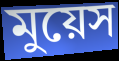
মুয়েস